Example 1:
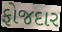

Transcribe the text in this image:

ફોજદાર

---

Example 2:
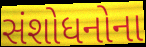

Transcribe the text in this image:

સંશોધનોના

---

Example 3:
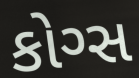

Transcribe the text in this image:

કોગ્સ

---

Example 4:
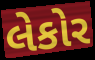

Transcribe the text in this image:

લેકોર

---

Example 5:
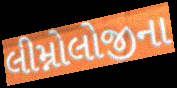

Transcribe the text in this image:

લીમ્નોલોજીના